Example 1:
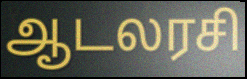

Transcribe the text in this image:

ஆடலரசி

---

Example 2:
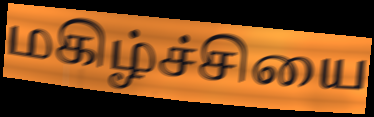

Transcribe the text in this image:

மகிழ்ச்சியை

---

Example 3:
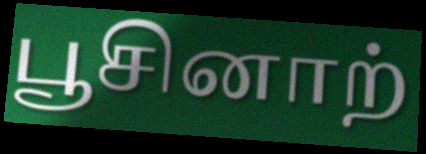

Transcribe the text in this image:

பூசினாற்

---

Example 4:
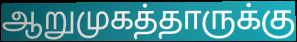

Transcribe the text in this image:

ஆறுமுகத்தாருக்கு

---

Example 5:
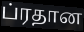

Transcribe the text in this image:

ப்ரதான